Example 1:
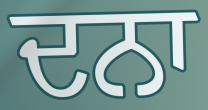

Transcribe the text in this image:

ਦਨਾ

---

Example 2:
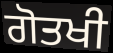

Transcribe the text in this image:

ਗੋਤਖੀ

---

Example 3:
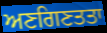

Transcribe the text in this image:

ਅਣਗਿਣਤਤਾ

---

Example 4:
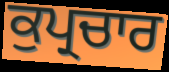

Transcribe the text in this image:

ਕੁਪ੍ਰਚਾਰ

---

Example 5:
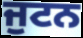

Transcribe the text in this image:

ਜੁਟਨ